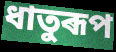
ধাতুৰূপ